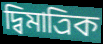
দ্বিমাত্ৰিক